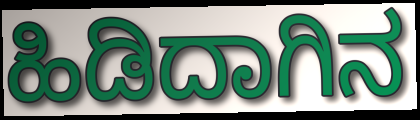
ಹಿಡಿದಾಗಿನ